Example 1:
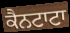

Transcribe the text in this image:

ਕੈਨਟਾਟਾ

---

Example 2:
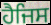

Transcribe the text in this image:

ਹੈਜਿਸ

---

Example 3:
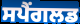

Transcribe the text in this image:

ਸਪੈਂਗਲਡ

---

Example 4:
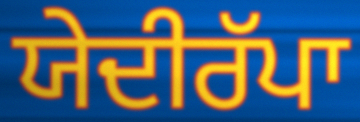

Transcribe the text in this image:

ਯੇਦੀਰੱਪਾ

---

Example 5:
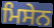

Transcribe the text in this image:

ਮਿਸੇਨ